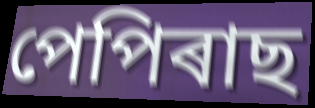
পেপিৰাছ